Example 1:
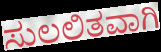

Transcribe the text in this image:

ಸುಲಲಿತವಾಗಿ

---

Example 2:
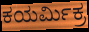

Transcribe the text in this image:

ಕಯರ್ಮಿಕ್ರ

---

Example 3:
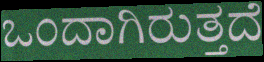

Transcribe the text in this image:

ಒಂದಾಗಿರುತ್ತದೆ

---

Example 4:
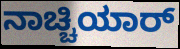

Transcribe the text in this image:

ನಾಚ್ಚಿಯಾರ್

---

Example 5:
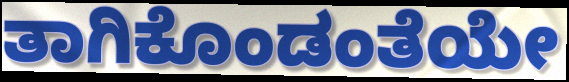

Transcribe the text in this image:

ತಾಗಿಕೊಂಡಂತೆಯೇ